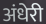
अंधेरी